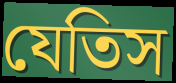
যেতিস